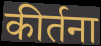
कीर्तना